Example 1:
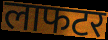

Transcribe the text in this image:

लाफटर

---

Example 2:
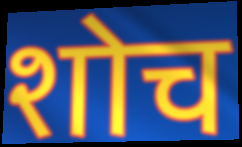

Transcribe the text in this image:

शोच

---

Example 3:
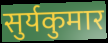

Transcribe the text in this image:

सुर्यकुमार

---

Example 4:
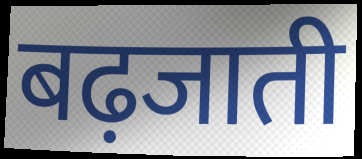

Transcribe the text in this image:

बढ़जाती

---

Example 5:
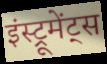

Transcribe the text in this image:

इंस्ट्रूमेंट्स